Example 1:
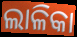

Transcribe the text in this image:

ଲାଳିକା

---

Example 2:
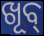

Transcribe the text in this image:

ଖୂବ୍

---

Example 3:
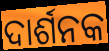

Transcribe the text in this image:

ଦାର୍ଶନକ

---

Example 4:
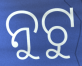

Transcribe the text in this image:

ନୁଟୁ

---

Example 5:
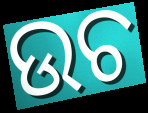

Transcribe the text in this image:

ଉଚ